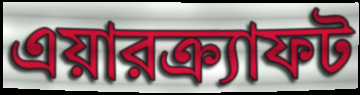
এয়ারক্র্যাফট